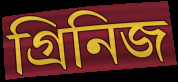
গ্রিনিজ